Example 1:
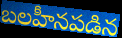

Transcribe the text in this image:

బలహీనపడిన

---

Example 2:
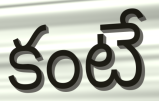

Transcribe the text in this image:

కంటే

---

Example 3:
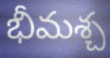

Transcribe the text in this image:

భీమశ్చ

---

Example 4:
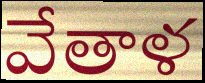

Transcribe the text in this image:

వేతాళ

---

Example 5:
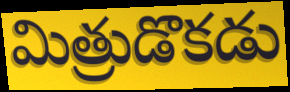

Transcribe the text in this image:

మిత్రుడొకడు